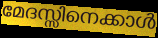
മേദസ്സിനെക്കാൾ